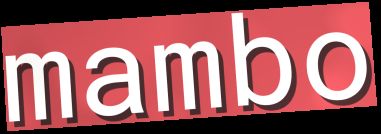
mambo